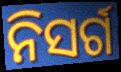
ନିସର୍ଗ